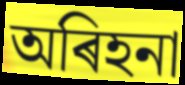
অৰিহনা